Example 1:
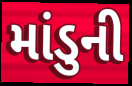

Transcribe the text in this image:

માંડુની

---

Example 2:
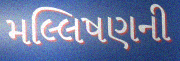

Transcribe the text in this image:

મલ્લિષણની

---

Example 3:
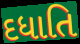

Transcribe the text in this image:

દધાતિ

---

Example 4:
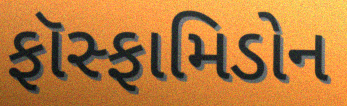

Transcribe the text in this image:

ફૉસ્ફામિડોન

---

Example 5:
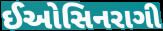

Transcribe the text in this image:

ઈઓસિનરાગી